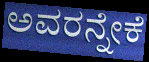
ಅವರನ್ನೇಕೆ